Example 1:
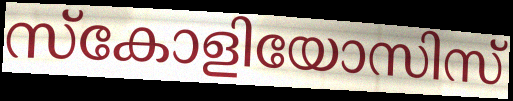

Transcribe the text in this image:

സ്കോളിയോസിസ്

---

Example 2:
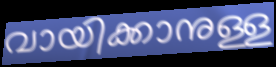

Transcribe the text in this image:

വായിക്കാനുള്ള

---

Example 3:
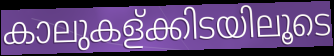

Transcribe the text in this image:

കാലുകള്ക്കിടയിലൂടെ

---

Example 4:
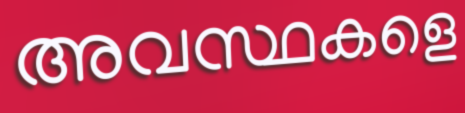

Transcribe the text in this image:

അവസ്ഥകളെ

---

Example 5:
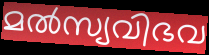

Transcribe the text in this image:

മൽസ്യവിഭവ